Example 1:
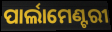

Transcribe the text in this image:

ପାର୍ଲାମେଣ୍ଟରୀ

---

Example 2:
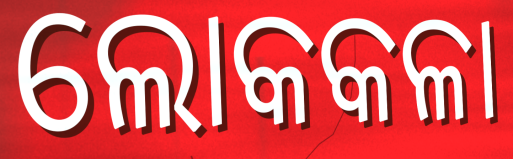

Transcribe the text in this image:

ଲୋକକଳା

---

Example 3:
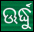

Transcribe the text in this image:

ଊର୍ଦ୍ଧୁ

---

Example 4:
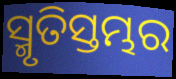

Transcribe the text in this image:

ସ୍ମୃତିସ୍ତମ୍ଭର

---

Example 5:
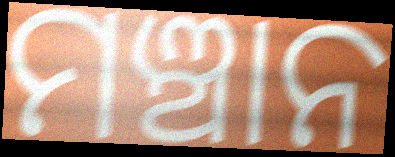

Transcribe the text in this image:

ମଞ୍ଚାନ